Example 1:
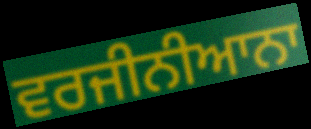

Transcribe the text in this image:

ਵਰਜੀਨੀਆਨਾ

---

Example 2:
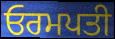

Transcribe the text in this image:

ਓਰਮਪਤੀ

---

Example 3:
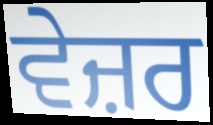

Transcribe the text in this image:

ਵੇਜ਼ਰ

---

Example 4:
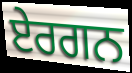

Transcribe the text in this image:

ਏਰਗਨ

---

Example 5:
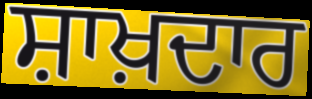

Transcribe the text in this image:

ਸ਼ਾਖ਼ਦਾਰ